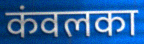
कंवलका